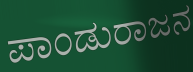
ಪಾಂಡುರಾಜನ